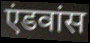
एंडवांस